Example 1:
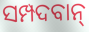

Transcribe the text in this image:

ସମ୍ପଦବାନ୍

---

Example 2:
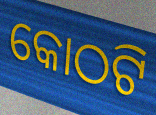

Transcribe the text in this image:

କୋଠଟି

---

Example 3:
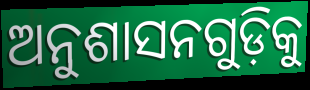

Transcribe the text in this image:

ଅନୁଶାସନଗୁଡ଼ିକୁ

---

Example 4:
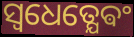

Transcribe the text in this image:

ସ୍ଵଧେତ୍ଯେଵଂ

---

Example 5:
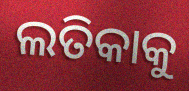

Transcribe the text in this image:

ଲତିକାକୁ